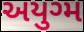
અયુગ્મ